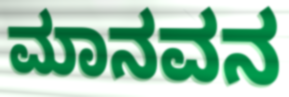
ಮಾನವನ